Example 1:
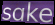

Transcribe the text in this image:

sake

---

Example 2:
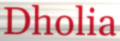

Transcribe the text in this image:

Dholia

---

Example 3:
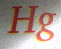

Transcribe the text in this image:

Hg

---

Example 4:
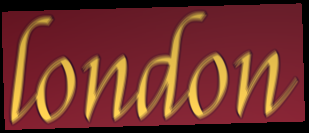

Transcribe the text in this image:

london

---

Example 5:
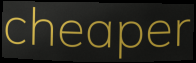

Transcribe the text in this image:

cheaper